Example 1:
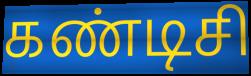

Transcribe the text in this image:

கண்டிசி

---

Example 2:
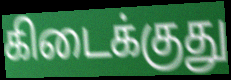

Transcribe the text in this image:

கிடைக்குது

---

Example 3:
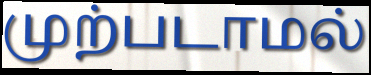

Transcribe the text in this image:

முற்படாமல்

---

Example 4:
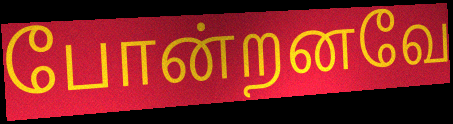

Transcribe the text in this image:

போன்றனவே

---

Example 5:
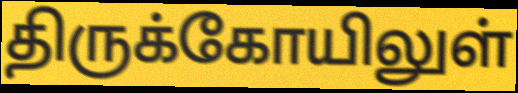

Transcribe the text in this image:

திருக்கோயிலுள்